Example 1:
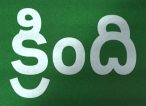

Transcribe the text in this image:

క్రింది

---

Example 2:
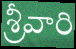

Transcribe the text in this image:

శ్రీవారి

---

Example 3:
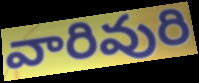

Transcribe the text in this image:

వారివురి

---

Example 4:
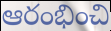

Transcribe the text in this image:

ఆరంభించి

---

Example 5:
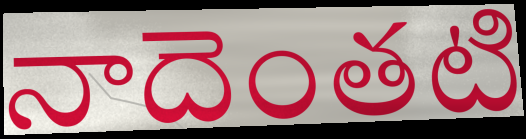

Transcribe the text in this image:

నాదెంతటి